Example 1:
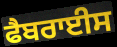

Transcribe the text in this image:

ਫੈਬਰਾਈਸ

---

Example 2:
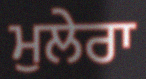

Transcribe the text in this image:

ਮੁਲੇਰਾ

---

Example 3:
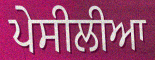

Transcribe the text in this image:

ਪੇਸੀਲੀਆ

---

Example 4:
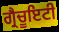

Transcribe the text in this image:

ਗ੍ਰੈਚੂਇਟੀ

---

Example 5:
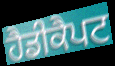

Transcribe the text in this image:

ਹੈਡੀਕੈਪਟ